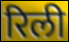
रिली